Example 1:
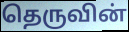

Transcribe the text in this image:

தெருவின்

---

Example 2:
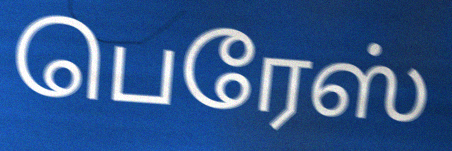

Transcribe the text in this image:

பெரேஸ்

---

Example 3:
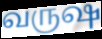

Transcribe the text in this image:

வருஷ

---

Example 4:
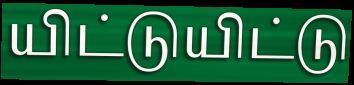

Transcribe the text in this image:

யிட்டுயிட்டு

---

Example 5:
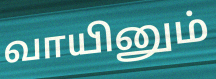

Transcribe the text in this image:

வாயினும்